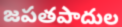
జపతపాదుల